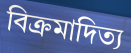
বিক্রমাদিত্য